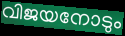
വിജയനോടും